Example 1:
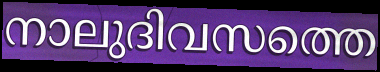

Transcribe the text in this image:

നാലുദിവസത്തെ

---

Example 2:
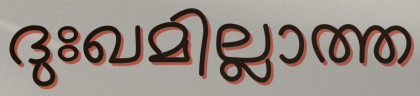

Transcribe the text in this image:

ദുഃഖമില്ലാത്ത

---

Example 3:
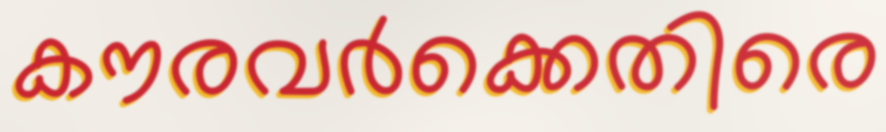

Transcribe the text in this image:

കൗരവർക്കെതിരെ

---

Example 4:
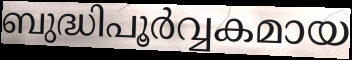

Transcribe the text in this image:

ബുദ്ധിപൂർവ്വകമായ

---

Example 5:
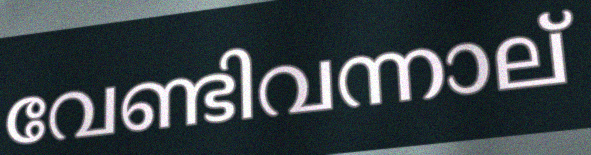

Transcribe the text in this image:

വേണ്ടിവന്നാല്